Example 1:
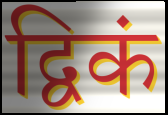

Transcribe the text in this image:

द्विकं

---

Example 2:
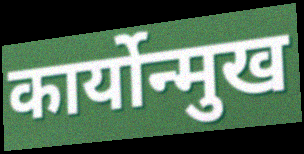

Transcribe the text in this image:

कार्योन्मुख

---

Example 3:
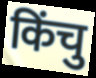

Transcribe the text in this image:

किंचु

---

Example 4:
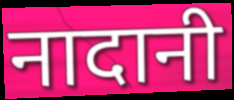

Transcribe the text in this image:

नादानी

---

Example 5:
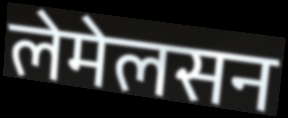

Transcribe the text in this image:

लेमेलसन